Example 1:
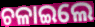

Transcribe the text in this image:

ଚଳାଇଲେ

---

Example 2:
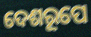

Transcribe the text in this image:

ଦେଶରୂପେ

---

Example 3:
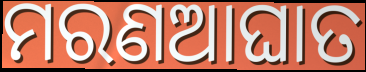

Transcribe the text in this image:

ମରଣଆଘାତ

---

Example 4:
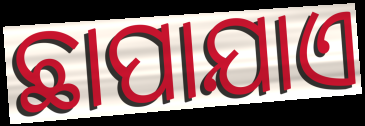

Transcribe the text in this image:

ଛାପାଯାଏ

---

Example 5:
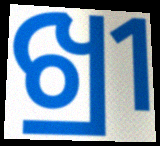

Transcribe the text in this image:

ଖ୍ରୀ